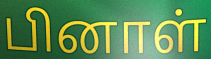
பினாள்